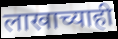
लाखाच्याही